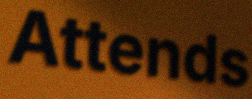
Attends